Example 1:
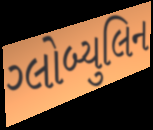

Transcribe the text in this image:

ગ્લોબ્યુલિન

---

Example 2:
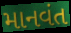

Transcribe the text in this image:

માનવંત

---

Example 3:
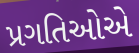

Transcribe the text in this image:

પ્રગતિઓએ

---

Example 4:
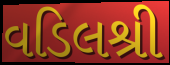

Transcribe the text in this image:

વડિલશ્રી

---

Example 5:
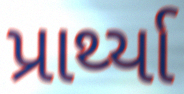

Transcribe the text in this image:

પ્રાર્થ્યા